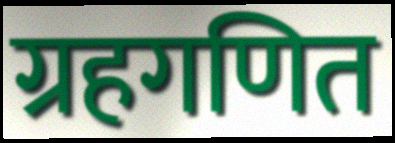
ग्रहगणित